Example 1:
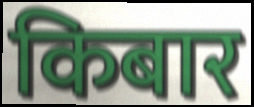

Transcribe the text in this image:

किबार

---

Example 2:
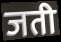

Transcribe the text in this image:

जती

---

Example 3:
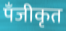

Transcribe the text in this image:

पँजीकृत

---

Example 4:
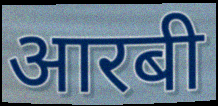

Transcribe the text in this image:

आरबी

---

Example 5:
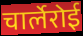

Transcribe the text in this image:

चार्लेरोई